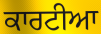
ਕਾਰਟੀਆ